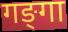
गङ्गा